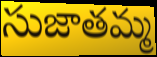
సుజాతమ్మ